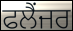
ਫਲੈਂਜਰ